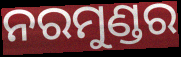
ନରମୁଣ୍ଡର